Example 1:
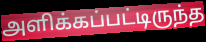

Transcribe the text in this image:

அளிக்கப்பட்டிருந்த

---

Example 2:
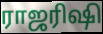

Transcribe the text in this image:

ராஜரிஷி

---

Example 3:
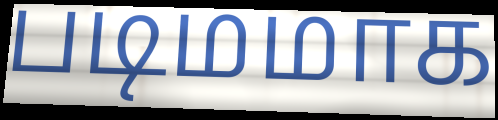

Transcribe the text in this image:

படிமமாக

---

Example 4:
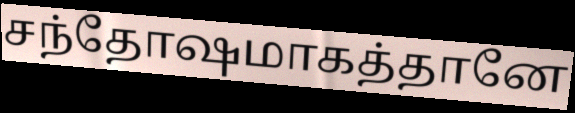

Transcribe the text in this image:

சந்தோஷமாகத்தானே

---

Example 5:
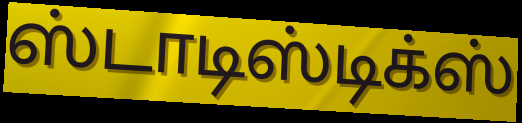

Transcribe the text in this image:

ஸ்டாடிஸ்டிக்ஸ்